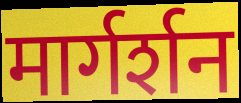
मार्गर्शन